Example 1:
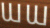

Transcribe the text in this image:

யய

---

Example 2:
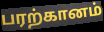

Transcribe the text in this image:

பரற்கானம்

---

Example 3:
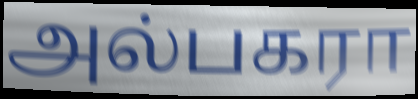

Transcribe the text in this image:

அல்பகரா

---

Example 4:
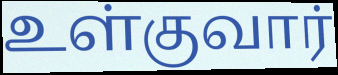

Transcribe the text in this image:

உள்குவார்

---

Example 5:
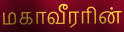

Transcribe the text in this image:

மகாவீரரின்